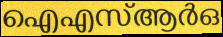
ഐഎസ്ആർഒ